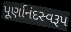
પૂર્ણાનંદસ્વરૂપ